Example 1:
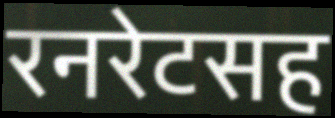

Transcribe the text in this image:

रनरेटसह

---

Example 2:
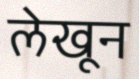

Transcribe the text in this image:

लेखून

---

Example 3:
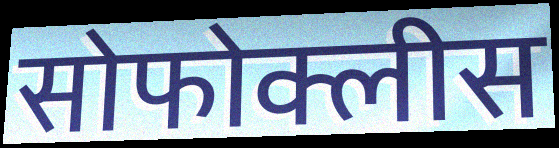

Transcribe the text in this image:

सोफोक्लीस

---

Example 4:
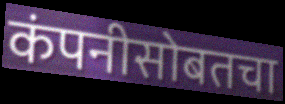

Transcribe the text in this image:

कंपनीसोबतचा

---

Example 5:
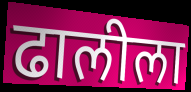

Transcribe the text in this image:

ढालीला